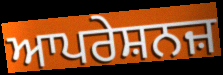
ਆਪਰੇਸ਼ਨਜ਼